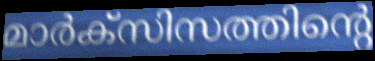
മാർക്സിസത്തിന്റെ